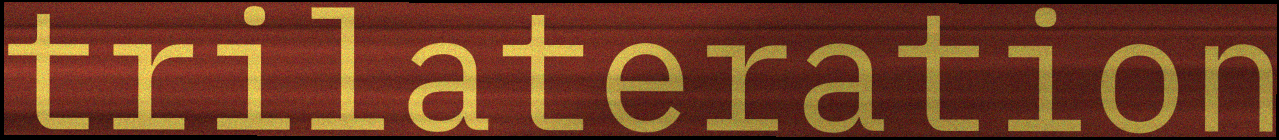
trilateration